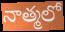
నాత్మలో